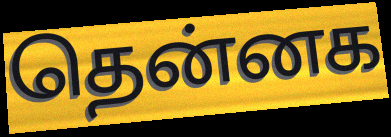
தென்னக